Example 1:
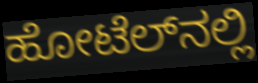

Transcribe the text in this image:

ಹೋಟೆಲ್‌ನಲ್ಲಿ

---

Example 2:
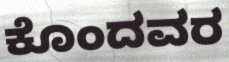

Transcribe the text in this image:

ಕೊಂದವರ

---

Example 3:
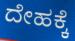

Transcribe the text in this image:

ದೇಹಕ್ಕೆ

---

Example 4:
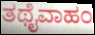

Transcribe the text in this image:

ತಥೈವಾಹಂ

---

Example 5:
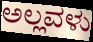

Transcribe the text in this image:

ಅಲ್ಲವಳು